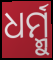
ଧର୍ମ୍ମୁ